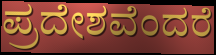
ಪ್ರದೇಶವೆಂದರೆ